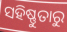
ସହିଷ୍ଣୁତାରୁ